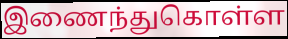
இணைந்துகொள்ள